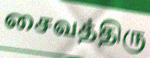
சைவத்திரு